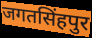
जगतसिंहपुर